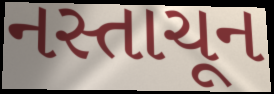
નસ્તાચૂન